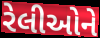
રેલીઓને